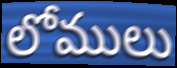
లోములు